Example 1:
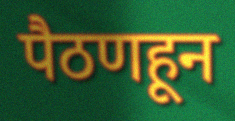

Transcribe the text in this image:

पैठणहून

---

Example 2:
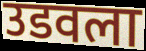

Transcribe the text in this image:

उडवला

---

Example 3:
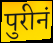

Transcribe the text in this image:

पुरीनं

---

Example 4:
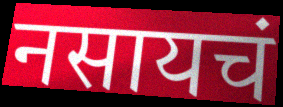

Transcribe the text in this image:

नसायचं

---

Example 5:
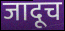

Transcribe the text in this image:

जादूच